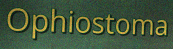
Ophiostoma